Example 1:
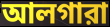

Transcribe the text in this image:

আলগারা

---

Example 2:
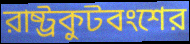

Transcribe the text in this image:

রাষ্ট্রকুটবংশের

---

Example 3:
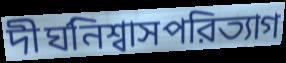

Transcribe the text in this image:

দীর্ঘনিশ্বাসপরিত্যাগ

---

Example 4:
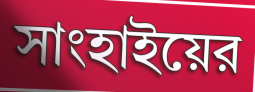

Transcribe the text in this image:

সাংহাইয়ের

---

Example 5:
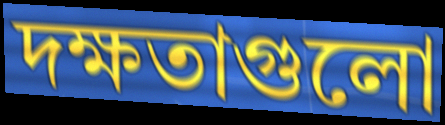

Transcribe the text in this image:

দক্ষতাগুলো